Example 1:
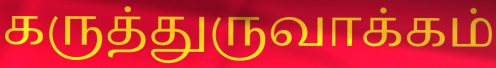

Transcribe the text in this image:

கருத்துருவாக்கம்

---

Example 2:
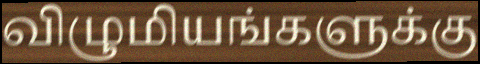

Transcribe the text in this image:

விழுமியங்களுக்கு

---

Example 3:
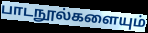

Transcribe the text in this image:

பாடநூல்களையும்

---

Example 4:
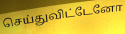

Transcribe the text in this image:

செய்துவிட்டேனோ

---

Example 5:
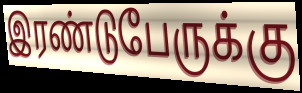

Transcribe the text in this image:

இரண்டுபேருக்கு